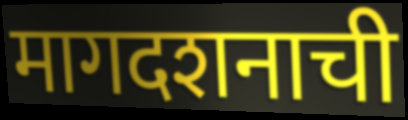
मागदशनाची